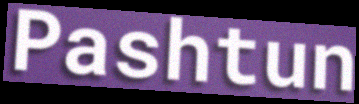
Pashtun